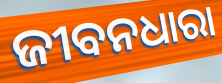
ଜୀବନଧାରା